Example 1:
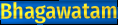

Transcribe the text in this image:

Bhagawatam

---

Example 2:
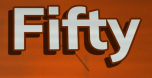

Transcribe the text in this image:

Fifty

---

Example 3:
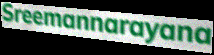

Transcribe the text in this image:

Sreemannarayana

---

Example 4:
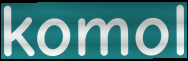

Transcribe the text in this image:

komol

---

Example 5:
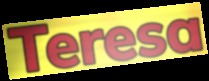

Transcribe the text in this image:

Teresa